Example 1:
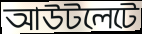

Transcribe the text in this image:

আউটলেটে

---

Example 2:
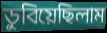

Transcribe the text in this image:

ডুবিয়েছিলাম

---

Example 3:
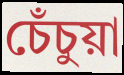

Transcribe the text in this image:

চেঁচুয়া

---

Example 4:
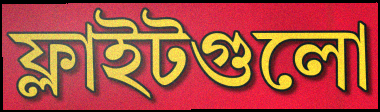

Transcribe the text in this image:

ফ্লাইটগুলো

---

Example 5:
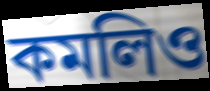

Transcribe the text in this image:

কমলিও